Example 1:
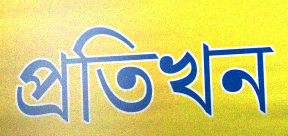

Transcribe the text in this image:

প্ৰতিখন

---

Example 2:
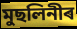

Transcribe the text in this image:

মুছলিনীৰ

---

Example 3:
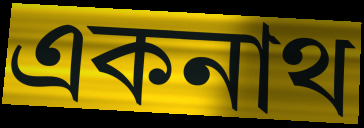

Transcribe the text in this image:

একনাথ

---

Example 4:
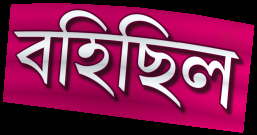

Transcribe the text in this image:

বহিছিল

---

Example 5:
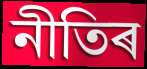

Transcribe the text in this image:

নীতিৰ